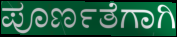
ಪೂರ್ಣತೆಗಾಗಿ